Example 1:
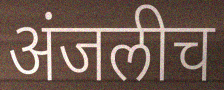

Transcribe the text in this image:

अंजलीच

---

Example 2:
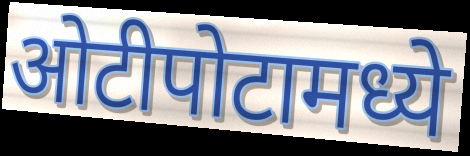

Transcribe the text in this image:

ओटीपोटामध्ये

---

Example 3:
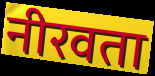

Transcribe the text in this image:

नीरवता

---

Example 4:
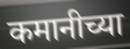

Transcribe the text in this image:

कमानीच्या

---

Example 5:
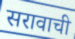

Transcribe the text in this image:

सरावाची